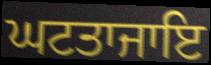
ਘਟਤਾਜਾਇ